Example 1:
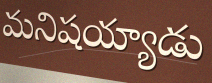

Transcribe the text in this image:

మనిషయ్యాడు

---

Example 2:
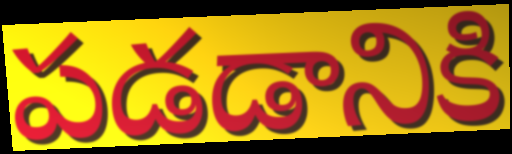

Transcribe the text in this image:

పడడానికి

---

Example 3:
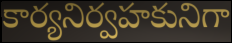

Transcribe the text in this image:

కార్యనిర్వహకునిగా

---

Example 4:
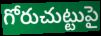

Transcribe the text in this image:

గోరుచుట్టుపై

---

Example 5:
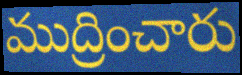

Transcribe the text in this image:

ముద్రించారు